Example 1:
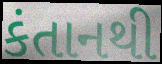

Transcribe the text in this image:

કંતાનથી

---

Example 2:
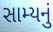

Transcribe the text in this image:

સામ્યનું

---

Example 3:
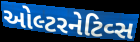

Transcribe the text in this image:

ઓલ્ટરનેટિવ્સ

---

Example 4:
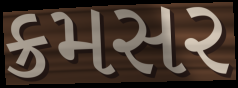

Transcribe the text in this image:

ક્રમસર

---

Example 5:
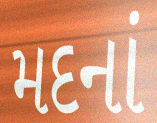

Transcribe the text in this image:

મદનાં